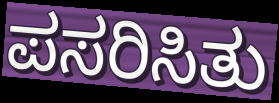
ಪಸರಿಸಿತು